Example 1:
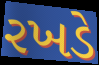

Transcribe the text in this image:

રખડે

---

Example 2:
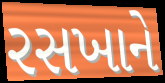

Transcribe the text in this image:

રસખાને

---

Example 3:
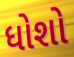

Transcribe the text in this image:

ધોશો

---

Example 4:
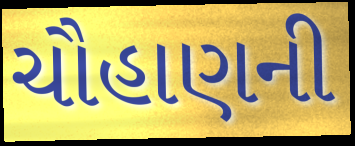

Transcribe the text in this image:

ચૌહાણની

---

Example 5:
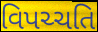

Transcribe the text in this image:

વિપચ્ચતિ